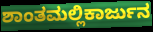
ಶಾಂತಮಲ್ಲಿಕಾರ್ಜುನ